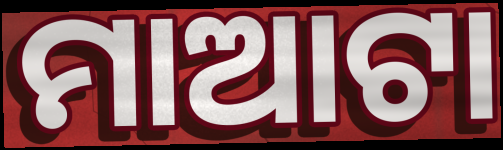
ମାଆଟା